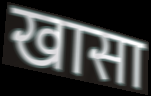
खासा